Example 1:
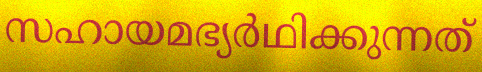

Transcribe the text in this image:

സഹായമഭ്യർഥിക്കുന്നത്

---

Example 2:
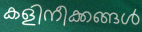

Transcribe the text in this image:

കളിനീക്കങ്ങൾ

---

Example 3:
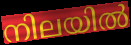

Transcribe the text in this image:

നിലയിൽ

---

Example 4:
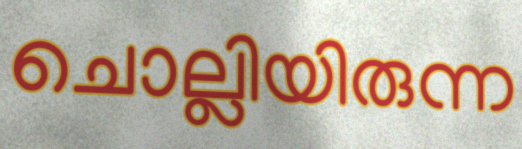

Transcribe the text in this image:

ചൊല്ലിയിരുന്ന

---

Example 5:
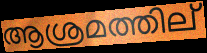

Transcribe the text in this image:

ആശ്രമത്തില്